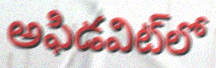
అఫిడవిట్‌లో